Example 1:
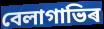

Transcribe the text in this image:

বেলাগাভিৰ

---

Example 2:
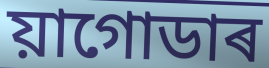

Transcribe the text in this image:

য়াগোডাৰ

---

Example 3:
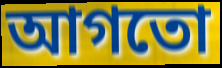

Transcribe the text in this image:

আগতো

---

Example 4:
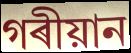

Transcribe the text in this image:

গৰীয়ান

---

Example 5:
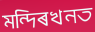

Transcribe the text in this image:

মন্দিৰখনত